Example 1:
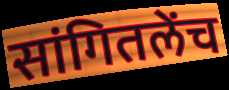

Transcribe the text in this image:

सांगितलेंच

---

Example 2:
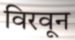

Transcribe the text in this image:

विरवून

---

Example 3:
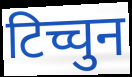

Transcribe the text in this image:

टिच्चुन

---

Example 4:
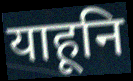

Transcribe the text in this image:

याहूनि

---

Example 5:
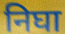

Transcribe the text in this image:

निघा